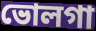
ভোলগা